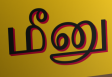
மீனு